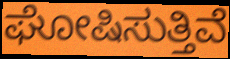
ಘೋಷಿಸುತ್ತಿವೆ